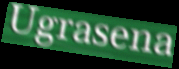
Ugrasena